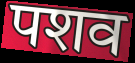
पशव